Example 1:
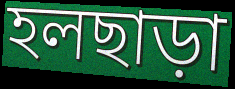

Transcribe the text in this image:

হলছাড়া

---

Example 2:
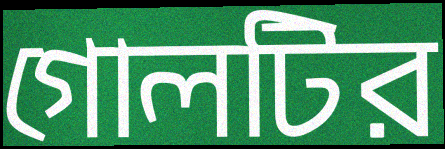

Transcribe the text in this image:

গোলটির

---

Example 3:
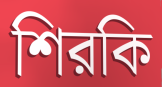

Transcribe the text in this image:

শিরকি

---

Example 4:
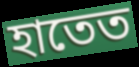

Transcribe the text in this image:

হাতেত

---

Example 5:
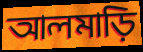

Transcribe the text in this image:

আলমাড়ি